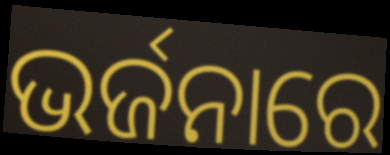
ଭର୍ଜନାରେ